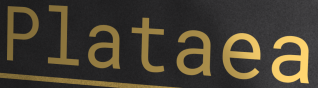
Plataea